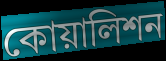
কোয়ালিশন